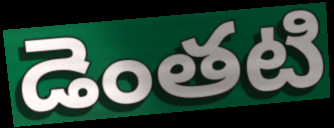
డెంతటి